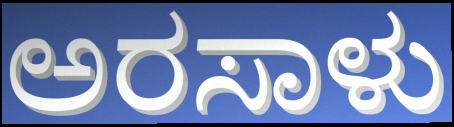
ಅರಸಾಳು